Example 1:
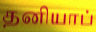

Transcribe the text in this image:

தனியாப்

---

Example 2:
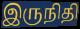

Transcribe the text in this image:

இருநிதி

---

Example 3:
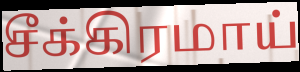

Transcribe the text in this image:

சீக்கிரமாய்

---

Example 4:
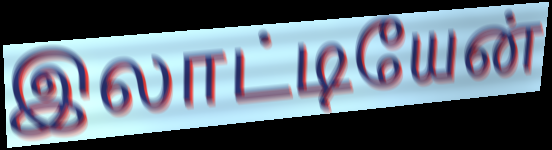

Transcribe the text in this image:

இலாட்டியேன்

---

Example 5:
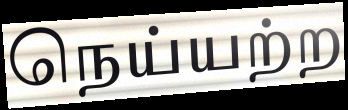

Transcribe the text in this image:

நெய்யற்ற